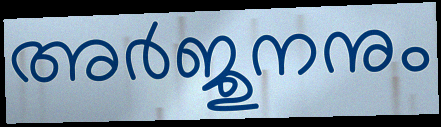
അർജുനനും